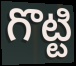
గొట్టి